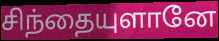
சிந்தையுளானே